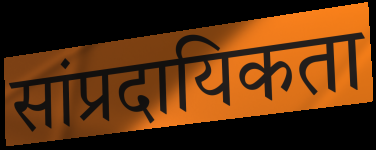
सांप्रदायिकता